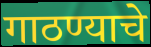
गाठण्याचे